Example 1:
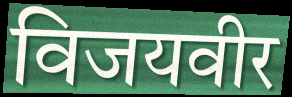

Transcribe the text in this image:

विजयवीर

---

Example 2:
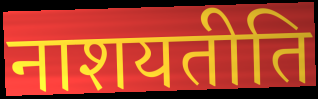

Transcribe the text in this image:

नाशयतीति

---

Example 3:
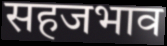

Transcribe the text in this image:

सहजभाव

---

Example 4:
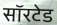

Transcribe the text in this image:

सॉरटेड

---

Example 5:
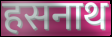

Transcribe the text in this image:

हसनाथ